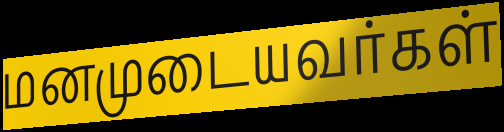
மனமுடையவர்கள்